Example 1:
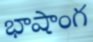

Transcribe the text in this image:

భాషాంగ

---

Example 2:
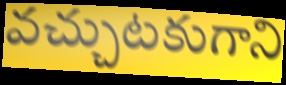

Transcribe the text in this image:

వచ్చుటకుగాని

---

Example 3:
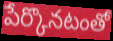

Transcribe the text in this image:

పేర్కొనటంతో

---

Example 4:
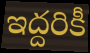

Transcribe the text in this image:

ఇద్దరికీ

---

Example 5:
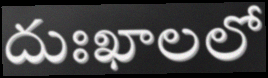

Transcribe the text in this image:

దుఃఖాలలో